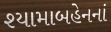
શ્યામાબહેનનાં